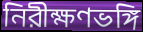
নিরীক্ষণভঙ্গি